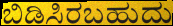
ಬಿಡಿಸಿರಬಹುದು